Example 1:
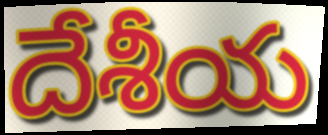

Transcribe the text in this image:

దేశీయ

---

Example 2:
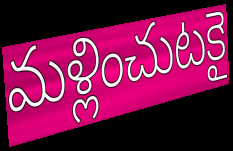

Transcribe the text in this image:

మళ్లించుటకై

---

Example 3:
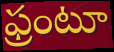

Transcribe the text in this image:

ఫ్రంటూ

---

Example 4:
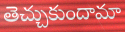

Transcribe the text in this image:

తెచ్చుకుందామా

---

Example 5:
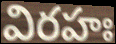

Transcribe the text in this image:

విరహః